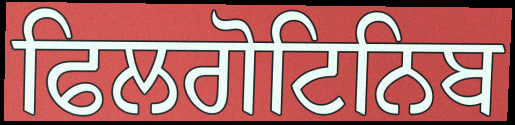
ਫਿਲਗੋਟਿਨਿਬ